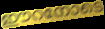
ഈറനോടെ